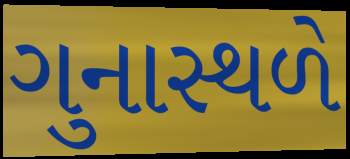
ગુનાસ્થળે